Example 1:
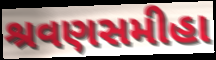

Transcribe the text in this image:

શ્રવણસમીહા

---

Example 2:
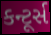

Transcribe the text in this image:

કન્ટૂર્સ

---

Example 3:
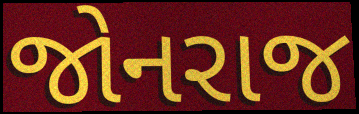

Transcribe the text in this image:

જોનરાજ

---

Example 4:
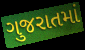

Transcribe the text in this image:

ગુજરાતમાં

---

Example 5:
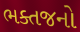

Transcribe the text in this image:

ભક્તજનો